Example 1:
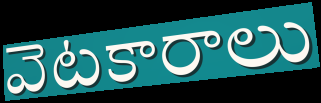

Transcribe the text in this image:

వెటకారాలు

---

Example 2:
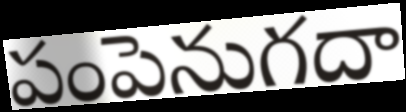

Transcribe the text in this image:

పంపెనుగదా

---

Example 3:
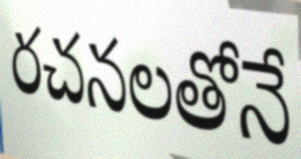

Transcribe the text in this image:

రచనలతోనే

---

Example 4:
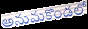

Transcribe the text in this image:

అనుమకొండలో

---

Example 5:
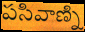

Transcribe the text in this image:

పసివాణ్ని